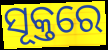
ସୂକ୍ତରେ